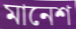
মানেশ